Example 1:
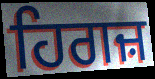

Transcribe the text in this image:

ਹਿਗਜ਼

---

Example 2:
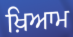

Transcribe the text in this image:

ਖ਼ਿਆਮ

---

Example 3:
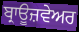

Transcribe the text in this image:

ਬ੍ਰਾਊਜ਼ਵੇਅਰ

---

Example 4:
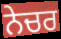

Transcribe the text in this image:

ਨੇਚਰ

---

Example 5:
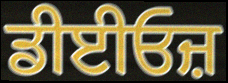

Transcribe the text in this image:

ਡੀਈਓਜ਼